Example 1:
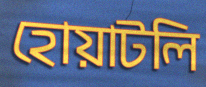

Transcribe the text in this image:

হোয়াটলি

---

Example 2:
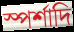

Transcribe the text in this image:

স্পর্শাদি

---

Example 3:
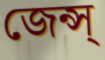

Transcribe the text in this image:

জেন্স্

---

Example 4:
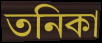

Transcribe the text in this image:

তনিকা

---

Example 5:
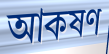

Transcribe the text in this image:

আকষণ